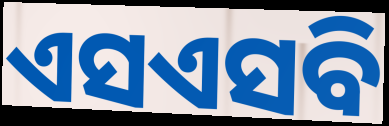
ଏସଏସବି